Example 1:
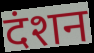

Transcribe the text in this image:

दंशन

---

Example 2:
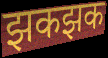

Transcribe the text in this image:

झकझक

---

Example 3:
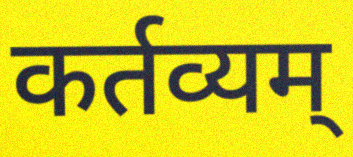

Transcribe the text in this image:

कर्तव्यम्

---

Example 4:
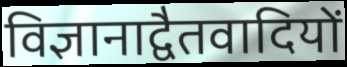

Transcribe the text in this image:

विज्ञानाद्वैतवादियों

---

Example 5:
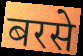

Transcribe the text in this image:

बरसे